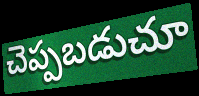
చెప్పబడుచూ